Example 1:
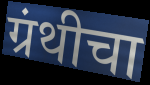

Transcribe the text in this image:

ग्रंथीचा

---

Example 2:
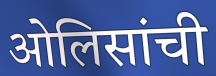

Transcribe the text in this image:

ओलिसांची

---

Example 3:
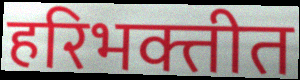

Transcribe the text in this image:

हरिभक्तीत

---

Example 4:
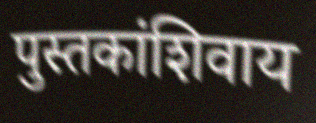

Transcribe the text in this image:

पुस्तकांशिवाय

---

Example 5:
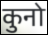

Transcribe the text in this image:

कुनो